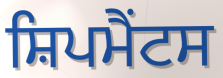
ਸ਼ਿਪਮੈਂਟਸ